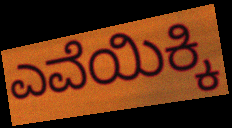
ಎವೆಯಿಕ್ಕಿ